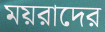
ময়রাদের